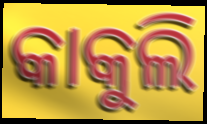
କାକୁଲି